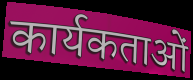
कार्यकताओं